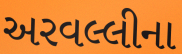
અરવલ્લીના